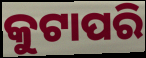
କୁଟାପରି